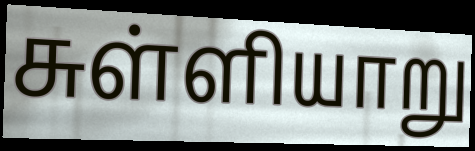
சுள்ளியாறு